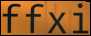
ffxi